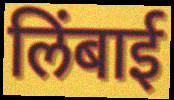
लिंबाई